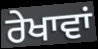
ਰੇਖਾਵਾਂ